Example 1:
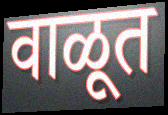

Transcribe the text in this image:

वाळूत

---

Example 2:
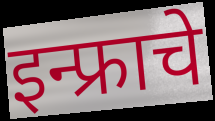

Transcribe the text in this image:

इन्फ्राचे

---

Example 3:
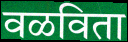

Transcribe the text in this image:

वळविता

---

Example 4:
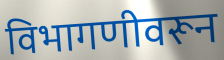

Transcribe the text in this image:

विभागणीवरून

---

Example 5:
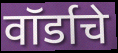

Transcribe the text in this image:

वॉर्डाचे